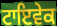
ਟਾਇਵੇਕ